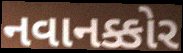
નવાનક્કોર